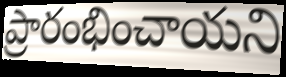
ప్రారంభించాయని